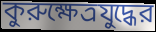
কুরুক্ষেত্রযুদ্ধের